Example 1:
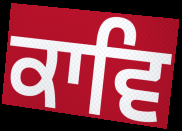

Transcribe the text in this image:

ਕਾਵਿ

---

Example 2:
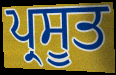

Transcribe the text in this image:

ਪ੍ਰਸੂਤ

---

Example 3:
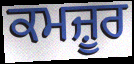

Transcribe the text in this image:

ਕਮਜ਼ੂਰ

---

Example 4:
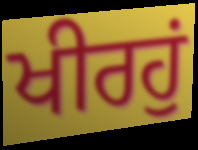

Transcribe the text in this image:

ਖੀਰਹੁਂ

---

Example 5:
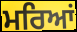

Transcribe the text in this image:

ਮਰਿਆਂ